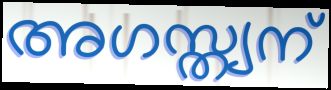
അഗസ്ത്യന്